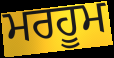
ਮਰਹੂਮ